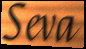
Seva